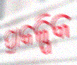
ପ୍ରାକଳ୍ପିକ